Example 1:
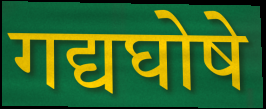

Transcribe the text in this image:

गद्यघोषे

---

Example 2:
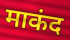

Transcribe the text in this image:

माकंद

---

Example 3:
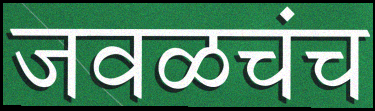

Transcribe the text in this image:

जवळचंच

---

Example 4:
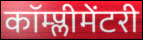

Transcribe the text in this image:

कॉम्प्लीमेंटरी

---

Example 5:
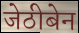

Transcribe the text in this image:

जेठीबेन